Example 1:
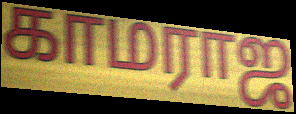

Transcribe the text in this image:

காமராஜ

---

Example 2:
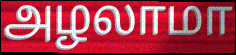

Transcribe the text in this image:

அழலாமா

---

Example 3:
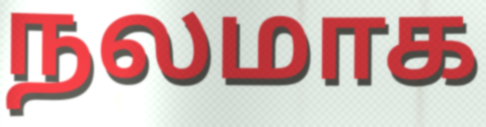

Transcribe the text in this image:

நலமாக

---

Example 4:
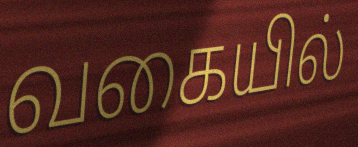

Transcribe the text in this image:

வகையில்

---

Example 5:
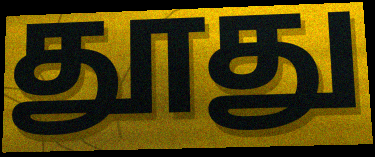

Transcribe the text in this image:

தூது